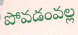
పోవడంవల్ల